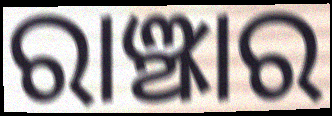
ରାଞ୍ଝାର